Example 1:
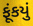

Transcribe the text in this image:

ફૂંકયું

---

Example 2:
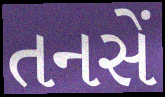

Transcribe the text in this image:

તનસેં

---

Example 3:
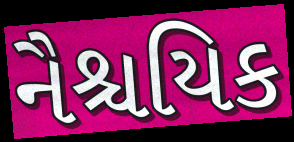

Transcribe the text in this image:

નૈશ્ચયિક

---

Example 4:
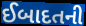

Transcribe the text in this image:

ઈબાદતની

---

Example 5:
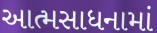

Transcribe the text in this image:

આત્મસાધનામાં